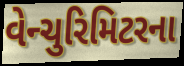
વેન્ચુરિમિટરના